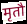
मृतौ